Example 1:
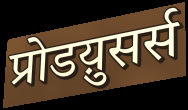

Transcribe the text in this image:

प्रोडय़ुसर्स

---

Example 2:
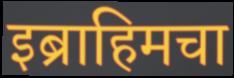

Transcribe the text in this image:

इब्राहिमचा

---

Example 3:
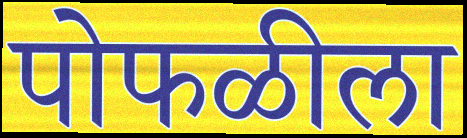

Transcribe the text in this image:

पोफळीला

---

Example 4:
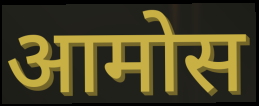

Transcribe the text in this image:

आमोस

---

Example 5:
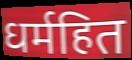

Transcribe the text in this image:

धर्महित